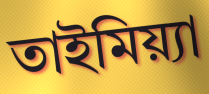
তাইমিয়্যা